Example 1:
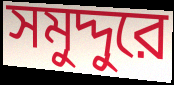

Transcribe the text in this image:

সমুদ্দুরে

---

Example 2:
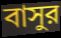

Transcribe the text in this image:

বাসুর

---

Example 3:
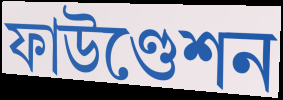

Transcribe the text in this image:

ফাউণ্ডেশন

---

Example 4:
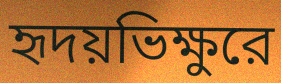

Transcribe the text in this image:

হৃদয়ভিক্ষুরে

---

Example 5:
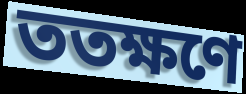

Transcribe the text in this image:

ততক্ষণে